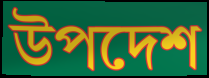
উপদেশ